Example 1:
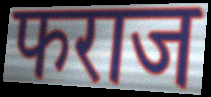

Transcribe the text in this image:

फराज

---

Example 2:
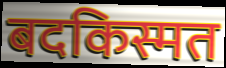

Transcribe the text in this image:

बदकिस्‍मत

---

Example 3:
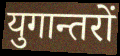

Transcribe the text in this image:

युगान्तरों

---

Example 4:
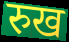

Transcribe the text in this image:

रुख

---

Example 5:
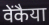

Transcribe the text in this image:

वेंकैया